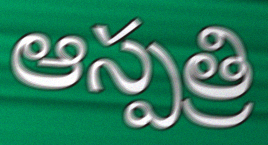
ఆస్పత్రి